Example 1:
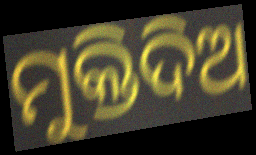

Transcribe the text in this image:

ମୁକ୍ତିଦିଅ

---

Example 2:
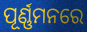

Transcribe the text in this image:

ପୂର୍ଣ୍ଣମନରେ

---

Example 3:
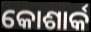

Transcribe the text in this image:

କୋଶାର୍କ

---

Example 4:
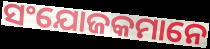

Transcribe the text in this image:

ସଂଯୋଜକମାନେ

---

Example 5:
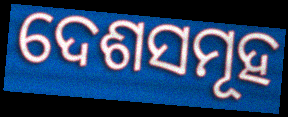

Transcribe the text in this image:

ଦେଶସମୂହ